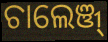
ଚାଲେଞ୍ଜ୍